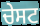
ਚੇਸਟ